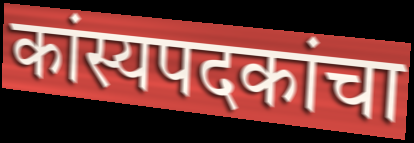
कांस्यपदकांचा